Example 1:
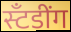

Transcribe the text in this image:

स्टँडींग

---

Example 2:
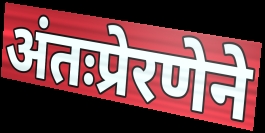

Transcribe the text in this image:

अंतःप्रेरणेने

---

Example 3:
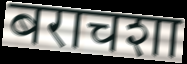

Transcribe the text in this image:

बराचशा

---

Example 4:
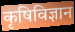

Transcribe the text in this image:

कृषिविज्ञान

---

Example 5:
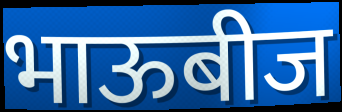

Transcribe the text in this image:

भाऊबीज